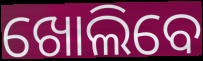
ଖୋଲିବେ